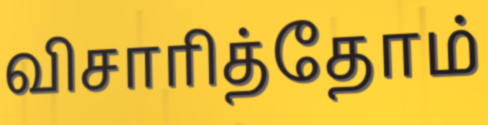
விசாரித்தோம்